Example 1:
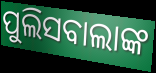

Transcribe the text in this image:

ପୁଲିସବାଲାଙ୍କ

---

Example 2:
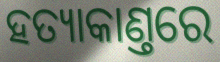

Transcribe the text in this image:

ହତ୍ୟାକାଣ୍ତରେ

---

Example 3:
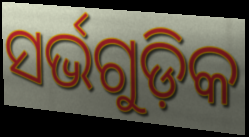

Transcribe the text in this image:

ସର୍ଭଗୁଡ଼ିକ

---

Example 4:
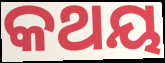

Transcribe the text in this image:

କଥୟ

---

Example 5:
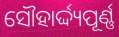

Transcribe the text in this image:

ସୌହାର୍ଦ୍ଦ୍ୟପୂର୍ଣ୍ଣ